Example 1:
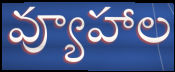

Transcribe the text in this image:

వ్యూహాల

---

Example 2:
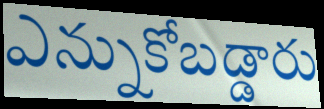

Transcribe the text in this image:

ఎన్నుకోబడ్డారు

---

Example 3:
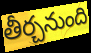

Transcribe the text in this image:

తీర్చనుంది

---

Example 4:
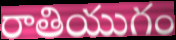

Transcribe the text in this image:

రాతియుగం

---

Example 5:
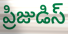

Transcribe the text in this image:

ప్రిజుడిస్